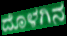
ದೊಳಗಿನ